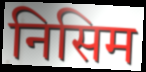
निसिम